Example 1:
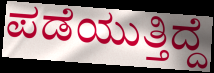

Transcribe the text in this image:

ಪಡೆಯುತ್ತಿದ್ದೆ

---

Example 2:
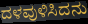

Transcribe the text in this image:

ದಳವುಳಿಸಿದನು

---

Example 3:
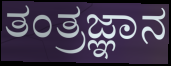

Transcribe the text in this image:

ತಂತ್ರಜ್ಞಾನ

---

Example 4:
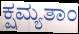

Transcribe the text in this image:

ಕ್ಷಮ್ಯತಾಂ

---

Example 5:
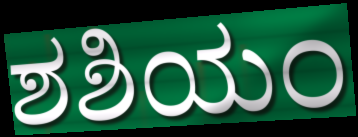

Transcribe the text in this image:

ಶಶಿಯಂ